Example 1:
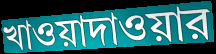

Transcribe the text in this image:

খাওয়াদাওয়ার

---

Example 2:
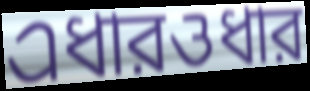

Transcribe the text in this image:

এধারওধার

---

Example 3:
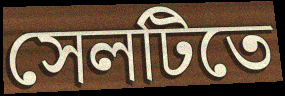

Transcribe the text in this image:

সেলটিতে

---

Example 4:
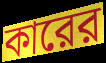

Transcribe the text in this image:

কারের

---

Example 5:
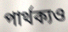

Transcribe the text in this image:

পার্থক্যও